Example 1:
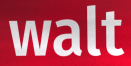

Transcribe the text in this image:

walt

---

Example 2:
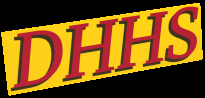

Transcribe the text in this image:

DHHS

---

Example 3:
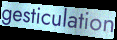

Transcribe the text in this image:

gesticulation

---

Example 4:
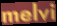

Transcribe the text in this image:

melvi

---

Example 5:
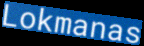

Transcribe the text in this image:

Lokmanas